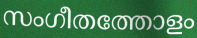
സംഗീതത്തോളം